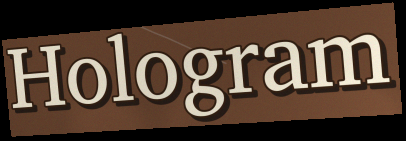
Hologram